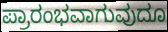
ಪ್ರಾರಂಭವಾಗುವುದೂ